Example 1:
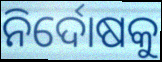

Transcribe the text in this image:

ନିର୍ଦୋଷକୁ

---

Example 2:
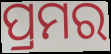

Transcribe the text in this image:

ପ୍ରମର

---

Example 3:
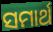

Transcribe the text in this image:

ସମାର୍ଥ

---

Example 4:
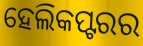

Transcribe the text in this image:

ହେଲିକପ୍ଟରର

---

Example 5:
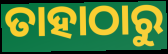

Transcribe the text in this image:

ତାହାଠାରୁ